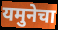
यमुनेचा